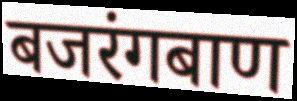
बजरंगबाण